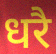
धरै